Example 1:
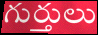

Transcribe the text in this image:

గుర్తులు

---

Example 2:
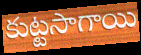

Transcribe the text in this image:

కుట్టసాగాయి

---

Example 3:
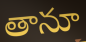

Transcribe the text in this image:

తానూ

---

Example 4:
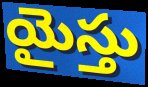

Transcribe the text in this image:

యైస్తు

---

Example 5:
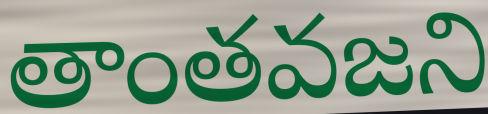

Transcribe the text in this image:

తాంతవజని